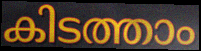
കിടത്താം